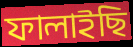
ফালাইছি